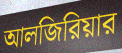
আলজিরিয়ার